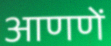
आणणें